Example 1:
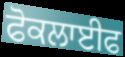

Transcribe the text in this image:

ਫੋਕਲਾਈਫ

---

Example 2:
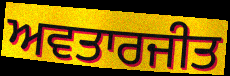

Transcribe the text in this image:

ਅਵਤਾਰਜੀਤ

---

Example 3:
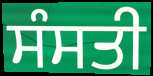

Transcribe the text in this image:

ਸੰਸਤੀ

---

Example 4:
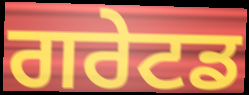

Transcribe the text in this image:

ਗਰੇਟਡ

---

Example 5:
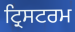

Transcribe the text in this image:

ਟ੍ਰਿਸਟਰਮ